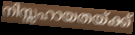
നിസ്സഹായതയ്ക്ക്